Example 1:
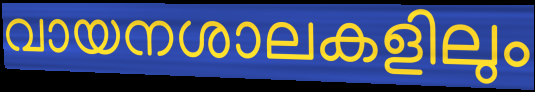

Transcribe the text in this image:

വായനശാലകളിലും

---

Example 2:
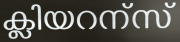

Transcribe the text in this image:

ക്ലിയറന്സ്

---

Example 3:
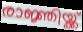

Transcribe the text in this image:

രാജ്ഞിയ്ക്ക്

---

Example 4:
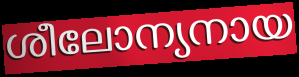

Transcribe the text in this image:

ശീലോന്യനായ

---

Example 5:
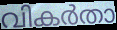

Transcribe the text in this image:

വികർതാ